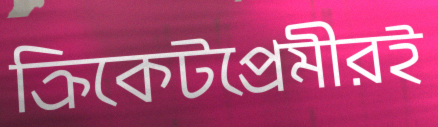
ক্রিকেটপ্রেমীরই